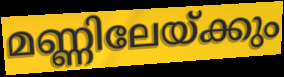
മണ്ണിലേയ്ക്കും